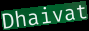
Dhaivat